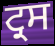
ਟ੍ਰਸ